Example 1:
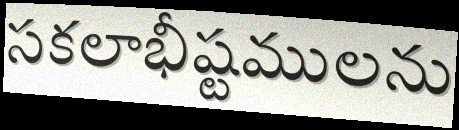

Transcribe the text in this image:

సకలాభీష్టములను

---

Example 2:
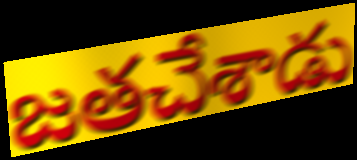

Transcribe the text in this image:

జతచేశాడు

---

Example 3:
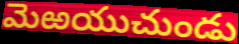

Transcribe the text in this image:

మెఱయుచుండు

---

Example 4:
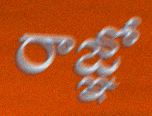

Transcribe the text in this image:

రాజ్ఞో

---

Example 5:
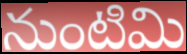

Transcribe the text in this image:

నుంటిమి